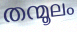
തന്മൂലം